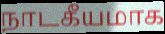
நாடகீயமாக